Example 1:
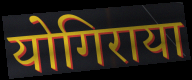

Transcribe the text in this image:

योगिराया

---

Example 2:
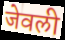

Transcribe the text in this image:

जेवली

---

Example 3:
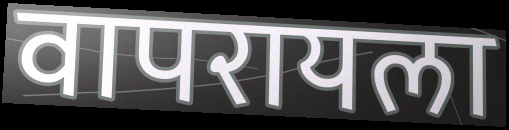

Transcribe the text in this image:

वापरायला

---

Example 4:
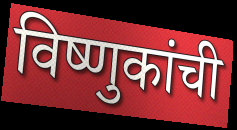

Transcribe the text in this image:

विष्णुकांची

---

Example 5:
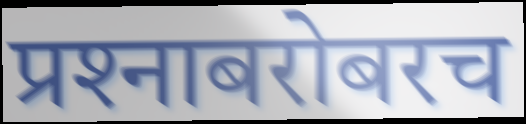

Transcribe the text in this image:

प्रश्‍नाबरोबरच